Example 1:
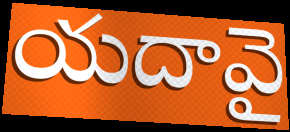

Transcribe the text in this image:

యదావై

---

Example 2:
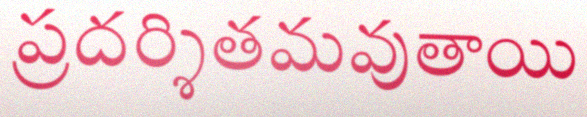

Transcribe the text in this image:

ప్రదర్శితమవుతాయి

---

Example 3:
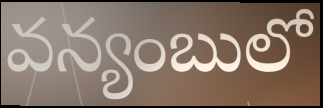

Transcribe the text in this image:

వన్యంబులో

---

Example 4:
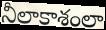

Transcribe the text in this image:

నీలాకాశంలా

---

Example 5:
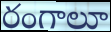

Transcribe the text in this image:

రంగాలూ